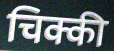
चिक्की